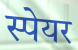
स्पेयर